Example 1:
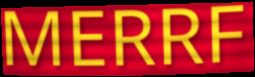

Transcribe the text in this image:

MERRF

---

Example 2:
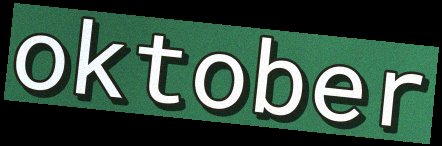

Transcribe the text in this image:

oktober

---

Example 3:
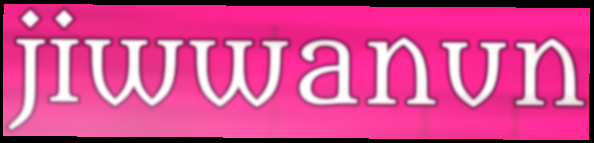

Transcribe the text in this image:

jiwwanun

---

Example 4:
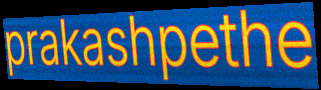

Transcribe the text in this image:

prakashpethe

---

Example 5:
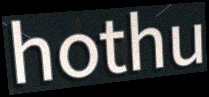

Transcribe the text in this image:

hothu